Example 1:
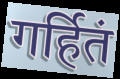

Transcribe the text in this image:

गर्हितं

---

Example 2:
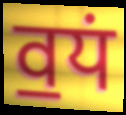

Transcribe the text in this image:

व॒यं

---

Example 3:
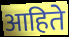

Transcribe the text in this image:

आहिते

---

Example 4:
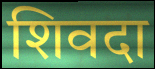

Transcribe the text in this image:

शिवदा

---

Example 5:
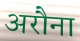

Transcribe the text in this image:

अरौना